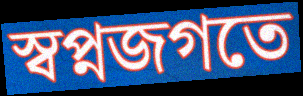
স্বপ্নজগতে